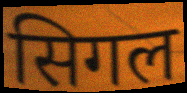
सिगल